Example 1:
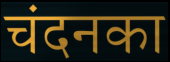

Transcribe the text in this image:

चंदनका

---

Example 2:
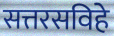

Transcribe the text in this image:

सत्तरसविहे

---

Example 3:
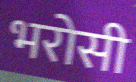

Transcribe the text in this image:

भरोसी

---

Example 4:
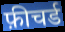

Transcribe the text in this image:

फ़ीचर्ड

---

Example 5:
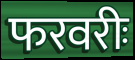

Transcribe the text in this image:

फरवरीः